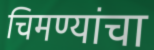
चिमण्यांचा